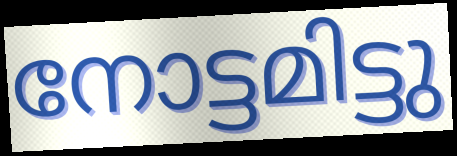
നോട്ടമിട്ടു